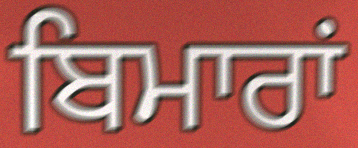
ਬਿਮਾਰਾਂ